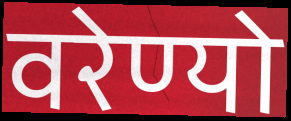
वरेण्यो